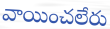
వాయించలేరు